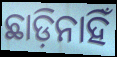
ଛାଡ଼ିନାହିଁ